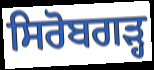
ਸਿਰੋਬਗੜ੍ਹ